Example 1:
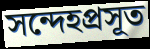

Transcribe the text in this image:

সন্দেহপ্রসূত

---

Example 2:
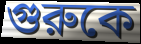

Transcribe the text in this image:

গুরুকে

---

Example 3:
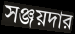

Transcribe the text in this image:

সঞ্জয়দার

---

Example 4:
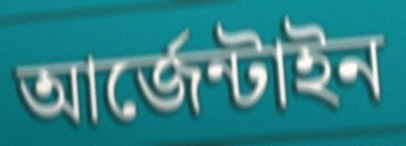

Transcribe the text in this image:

আর্জেন্টাইন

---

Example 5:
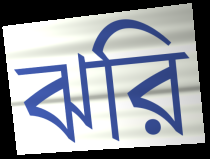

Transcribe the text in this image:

ঝরি